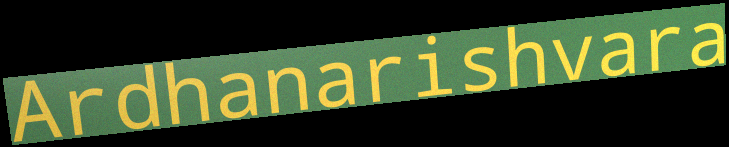
Ardhanarishvara